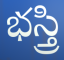
భస్త్రి